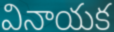
వినాయక